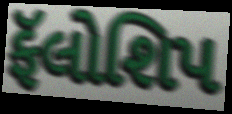
ફૅલોશિપ